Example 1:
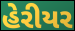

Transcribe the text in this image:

હેરીયર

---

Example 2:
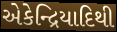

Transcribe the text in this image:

એકેન્દ્રિયાદિથી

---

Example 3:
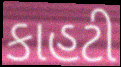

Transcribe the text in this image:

કાહટી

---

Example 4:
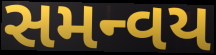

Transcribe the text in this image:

સમન્વય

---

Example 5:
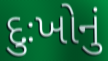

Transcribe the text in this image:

દુઃખોનું